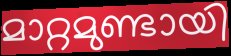
മാറ്റമുണ്ടായി